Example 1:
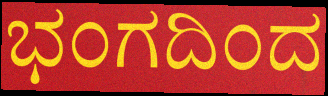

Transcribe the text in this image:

ಭಂಗದಿಂದ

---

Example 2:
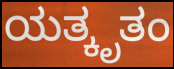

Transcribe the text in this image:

ಯತ್ಕೃತಂ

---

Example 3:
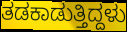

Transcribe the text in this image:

ತಡಕಾಡುತ್ತಿದ್ದಳು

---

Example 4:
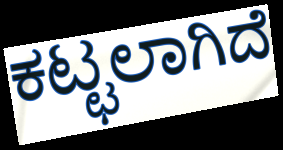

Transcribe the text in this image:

ಕಟ್ಟಲಾಗಿದೆ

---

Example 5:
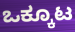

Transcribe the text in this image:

ಒಕ್ಕೂಟ